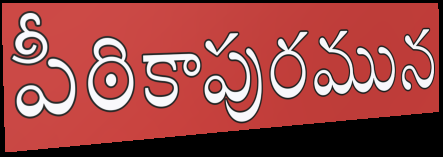
పీఠికాపురమున